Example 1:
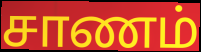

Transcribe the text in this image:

சாணம்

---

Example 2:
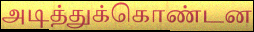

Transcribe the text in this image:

அடித்துக்கொண்டன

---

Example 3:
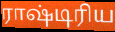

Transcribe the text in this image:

ராஷ்டிரிய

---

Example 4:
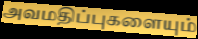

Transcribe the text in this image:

அவமதிப்புகளையும்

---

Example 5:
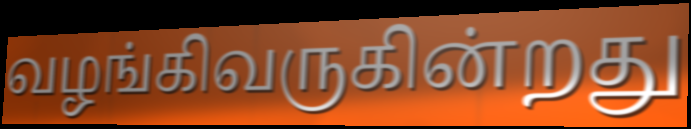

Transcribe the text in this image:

வழங்கிவருகின்றது